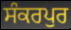
ਸੰਕਰਪੁਰ